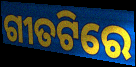
ଗୀତଟିରେ